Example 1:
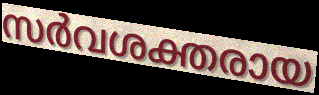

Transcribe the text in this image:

സർവശക്തരായ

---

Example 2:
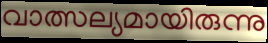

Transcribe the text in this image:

വാത്സല്യമായിരുന്നു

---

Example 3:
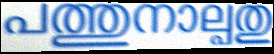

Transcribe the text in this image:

പത്തുനാല്പതു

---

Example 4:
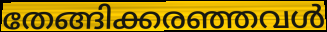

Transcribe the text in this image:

തേങ്ങിക്കരഞ്ഞവൾ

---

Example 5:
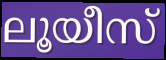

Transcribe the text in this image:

ലൂയീസ്